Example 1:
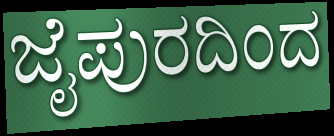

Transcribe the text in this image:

ಜೈಪುರದಿಂದ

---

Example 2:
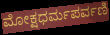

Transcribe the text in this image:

ಮೋಕ್ಷಧರ್ಮಪರ್ವಣಿ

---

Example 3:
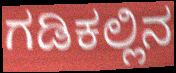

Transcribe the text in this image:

ಗಡಿಕಲ್ಲಿನ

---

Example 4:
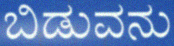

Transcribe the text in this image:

ಬಿಡುವನು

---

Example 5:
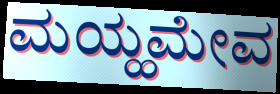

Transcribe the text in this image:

ಮಯ್ಹಮೇವ